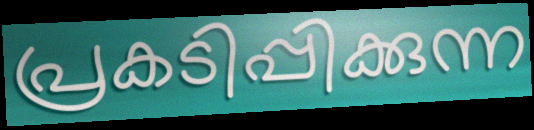
പ്രകടിപ്പിക്കുന്ന